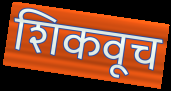
शिकवूच